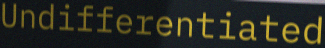
Undifferentiated